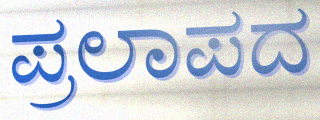
ಪ್ರಲಾಪದ